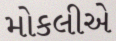
મોકલીએ